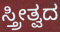
ಸ್ತ್ರೀತ್ವದ